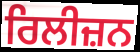
ਰਿਲੀਜ਼ਨ